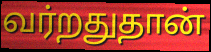
வர்றதுதான்